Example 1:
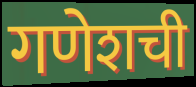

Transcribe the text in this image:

गणेशची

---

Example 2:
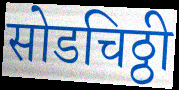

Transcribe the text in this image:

सोडचिठ्ठी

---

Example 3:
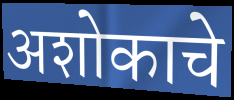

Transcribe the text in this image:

अशोकाचे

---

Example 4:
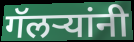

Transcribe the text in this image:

गॅलऱ्यांनी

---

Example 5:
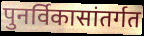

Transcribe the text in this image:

पुनर्विकासांतर्गत